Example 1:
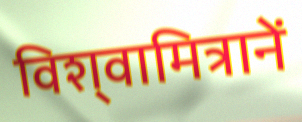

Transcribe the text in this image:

विश्वामित्रानें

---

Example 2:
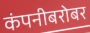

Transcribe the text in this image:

कंपनीबरोबर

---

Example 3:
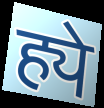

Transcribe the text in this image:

ह्ये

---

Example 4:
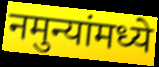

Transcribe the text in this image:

नमुन्यांमध्ये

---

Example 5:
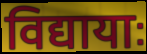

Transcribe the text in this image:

विद्यायाः